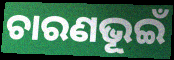
ଚାରଣଭୂଇଁ